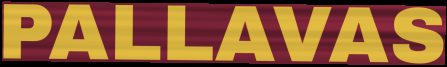
PALLAVAS